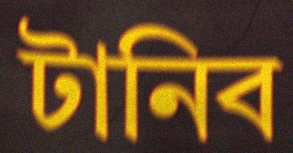
টানিব